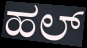
ಹಲ್